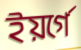
ইয়র্গে